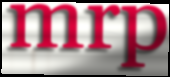
mrp